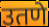
उतणे